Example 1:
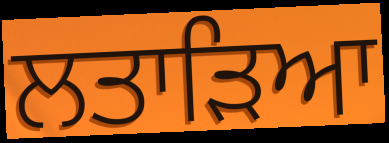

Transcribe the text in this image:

ਲਤਾੜਿਆ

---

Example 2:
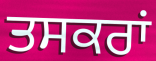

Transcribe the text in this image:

ਤਸਕਰਾਂ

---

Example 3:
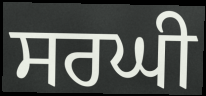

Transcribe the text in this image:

ਸਰਘੀ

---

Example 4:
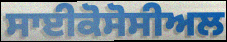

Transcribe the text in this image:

ਸਾਈਕੋਸੋਸੀਅਲ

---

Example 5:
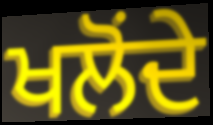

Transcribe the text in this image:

ਖਲੋਂਦੇ